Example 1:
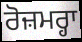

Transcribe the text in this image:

ਰੋਜ਼ਮਰ੍ਹਾ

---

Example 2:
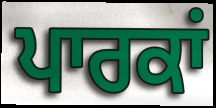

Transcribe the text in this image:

ਪਾਰਕਾਂ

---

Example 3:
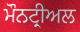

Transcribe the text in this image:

ਮੌਨਟ੍ਰੀਅਲ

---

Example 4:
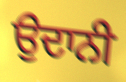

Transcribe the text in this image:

ਉਦਾਨੀ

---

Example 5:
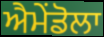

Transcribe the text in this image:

ਐਮੇਂਡੋਲਾ